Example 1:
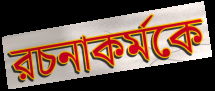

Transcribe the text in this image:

রচনাকর্মকে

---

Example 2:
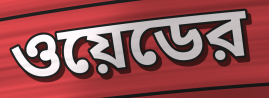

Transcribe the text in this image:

ওয়েডের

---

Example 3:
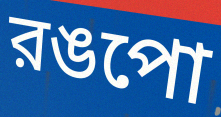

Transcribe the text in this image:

রঙপো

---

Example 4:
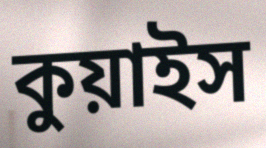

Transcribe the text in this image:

কুয়াইস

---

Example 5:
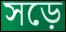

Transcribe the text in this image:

সড়ে